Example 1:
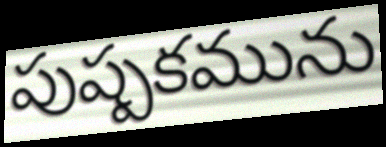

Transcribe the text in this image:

పుష్పకమును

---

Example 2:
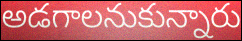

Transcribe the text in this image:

అడగాలనుకున్నారు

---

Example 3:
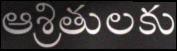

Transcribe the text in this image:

ఆశ్రితులకు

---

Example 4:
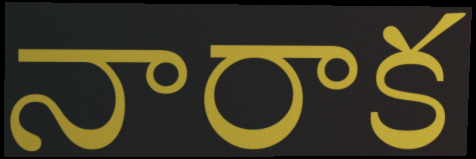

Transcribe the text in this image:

నారాక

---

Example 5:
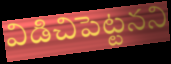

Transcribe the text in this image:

విడిచిపెట్టనని